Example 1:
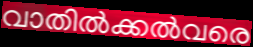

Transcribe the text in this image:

വാതിൽക്കൽവരെ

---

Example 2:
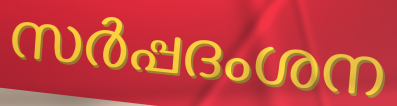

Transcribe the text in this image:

സർപ്പദംശന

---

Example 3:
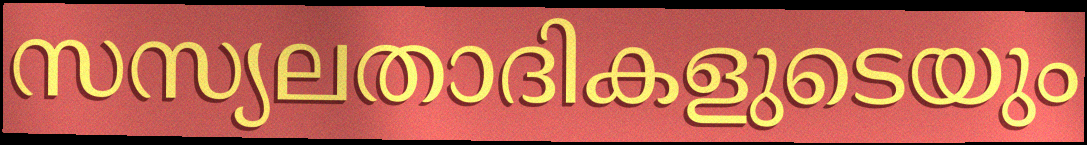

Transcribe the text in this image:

സസ്യലതാദികളുടെയും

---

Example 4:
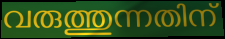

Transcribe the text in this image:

വരുത്തുന്നതിന്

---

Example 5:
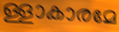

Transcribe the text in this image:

ള്ളാകാരമേ